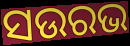
ସଉରଭ